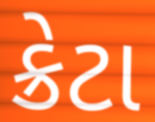
ક્રેટા